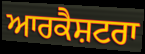
ਆਰਕੈਸ਼ਟਰਾ